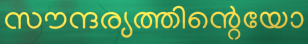
സൗന്ദര്യത്തിന്റെയോ